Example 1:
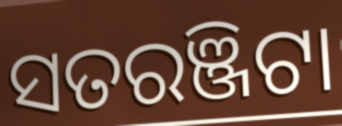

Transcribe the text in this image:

ସତରଞ୍ଜିଟା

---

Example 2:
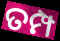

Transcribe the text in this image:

ତମ୍ପ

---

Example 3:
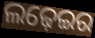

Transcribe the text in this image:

ଲଢ଼େଇର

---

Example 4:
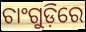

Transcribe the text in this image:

ଚାଂଗୁଡ଼ିରେ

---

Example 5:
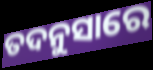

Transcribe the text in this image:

ତଦନୁସାରେ